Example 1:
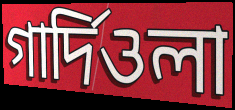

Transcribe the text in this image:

গার্দিওলা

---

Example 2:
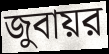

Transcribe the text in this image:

জুবায়র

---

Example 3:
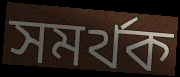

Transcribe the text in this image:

সমর্থক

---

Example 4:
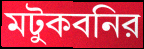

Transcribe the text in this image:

মটুকবনির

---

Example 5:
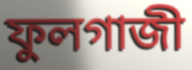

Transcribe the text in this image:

ফুলগাজী